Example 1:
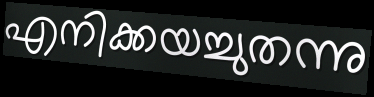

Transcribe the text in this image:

എനിക്കയച്ചുതന്നു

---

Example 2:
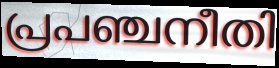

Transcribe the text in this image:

പ്രപഞ്ചനീതി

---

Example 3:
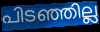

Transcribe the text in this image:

പിടഞ്ഞില്ല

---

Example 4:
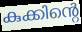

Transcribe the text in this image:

കുക്കിന്റെ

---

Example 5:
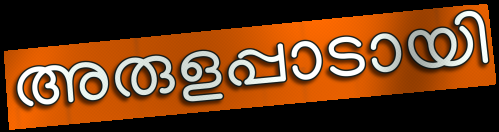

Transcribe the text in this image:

അരുളപ്പാടായി